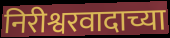
निरीश्वरवादाच्या